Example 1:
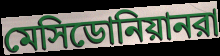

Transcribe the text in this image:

মেসিডোনিয়ানরা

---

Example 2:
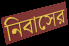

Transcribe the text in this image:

নিবাসের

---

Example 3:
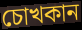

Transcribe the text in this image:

চোখকান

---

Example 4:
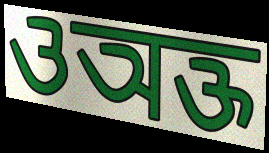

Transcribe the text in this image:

ওঅক্ত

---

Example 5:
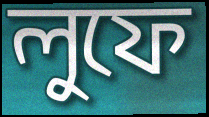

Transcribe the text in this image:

লুফে